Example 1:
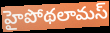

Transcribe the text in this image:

హైపోథలామస్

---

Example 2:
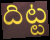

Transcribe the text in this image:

దిట్ట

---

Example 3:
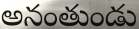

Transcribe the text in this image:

అనంతుండు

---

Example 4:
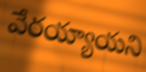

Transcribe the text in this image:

వేరయ్యాయని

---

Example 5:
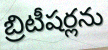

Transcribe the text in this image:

బ్రిటీషర్లను